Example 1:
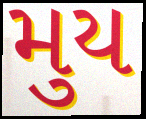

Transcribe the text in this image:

મુય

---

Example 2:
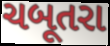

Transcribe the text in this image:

ચબૂતરા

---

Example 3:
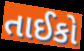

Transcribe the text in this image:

તાઈકો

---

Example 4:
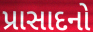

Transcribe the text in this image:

પ્રાસાદનો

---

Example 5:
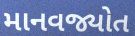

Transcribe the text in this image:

માનવજ્યોત